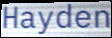
Hayden